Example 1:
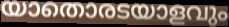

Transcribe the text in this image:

യാതൊരടയാളവും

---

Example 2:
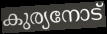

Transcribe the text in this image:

കുര്യനോട്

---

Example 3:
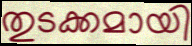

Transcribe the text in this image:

തുടക്കമായി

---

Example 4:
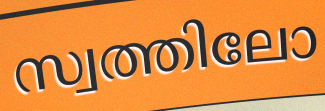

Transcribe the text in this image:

സ്വത്തിലോ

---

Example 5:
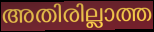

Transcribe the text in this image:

അതിരില്ലാത്ത